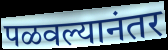
पळवल्यानंतर